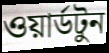
ওয়ার্ডটুন